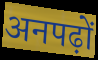
अनपढ़ों